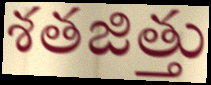
శతజిత్తు